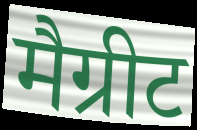
मैग्रीट